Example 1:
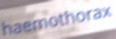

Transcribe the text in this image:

haemothorax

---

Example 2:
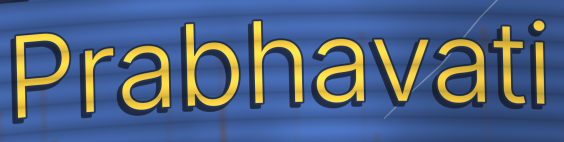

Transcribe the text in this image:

Prabhavati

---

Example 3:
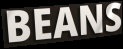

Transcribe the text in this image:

BEANS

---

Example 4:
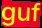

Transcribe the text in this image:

guf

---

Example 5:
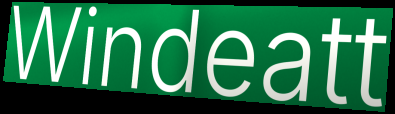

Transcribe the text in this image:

Windeatt